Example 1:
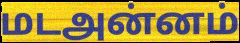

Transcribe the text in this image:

மடஅன்னம்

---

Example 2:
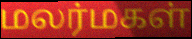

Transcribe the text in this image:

மலர்மகள்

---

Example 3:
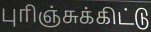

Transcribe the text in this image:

புரிஞ்சுக்கிட்டு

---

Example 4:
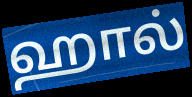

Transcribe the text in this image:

ஹால்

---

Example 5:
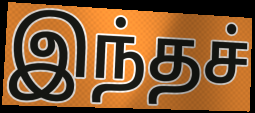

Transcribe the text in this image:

இந்தச்